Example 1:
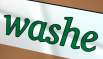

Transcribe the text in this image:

washe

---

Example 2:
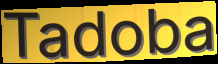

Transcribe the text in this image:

Tadoba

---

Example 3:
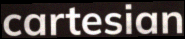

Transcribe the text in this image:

cartesian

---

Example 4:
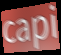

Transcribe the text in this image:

capi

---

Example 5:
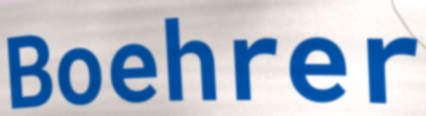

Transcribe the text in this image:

Boehrer